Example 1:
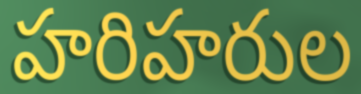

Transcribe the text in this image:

హరిహరుల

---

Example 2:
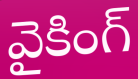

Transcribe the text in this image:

వైకింగ్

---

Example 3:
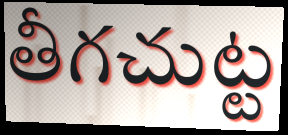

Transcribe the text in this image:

తీగచుట్ట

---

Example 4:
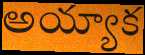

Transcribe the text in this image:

అయ్యాక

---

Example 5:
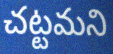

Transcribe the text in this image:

చట్టమని